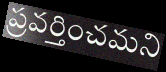
ప్రవర్తించమని